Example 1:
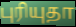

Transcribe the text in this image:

புரியுதா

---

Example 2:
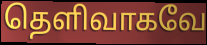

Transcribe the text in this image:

தெளிவாகவே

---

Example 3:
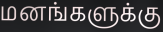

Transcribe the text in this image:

மனங்களுக்கு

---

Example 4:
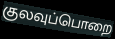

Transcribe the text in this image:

குலவுப்பொறை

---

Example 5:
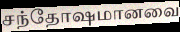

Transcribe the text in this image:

சந்தோஷமானவை